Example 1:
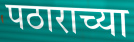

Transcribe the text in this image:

पठाराच्या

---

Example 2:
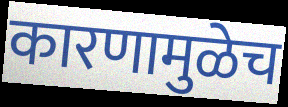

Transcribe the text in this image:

कारणामुळेच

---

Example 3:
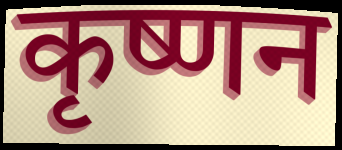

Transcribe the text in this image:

कृष्णन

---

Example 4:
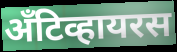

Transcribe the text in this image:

अँटिव्हायरस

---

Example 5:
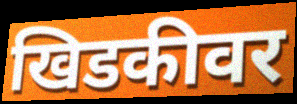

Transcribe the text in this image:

खिडकीवर